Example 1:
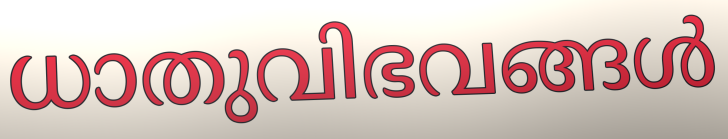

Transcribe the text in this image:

ധാതുവിഭവങ്ങൾ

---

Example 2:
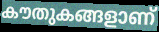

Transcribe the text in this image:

കൗതുകങ്ങളാണ്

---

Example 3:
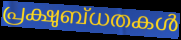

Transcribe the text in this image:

പ്രക്ഷുബ്ധതകൾ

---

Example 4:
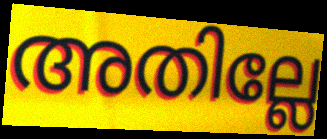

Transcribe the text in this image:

അതില്ലേ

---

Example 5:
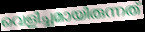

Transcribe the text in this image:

വെളിച്ചമായിരുന്നത്